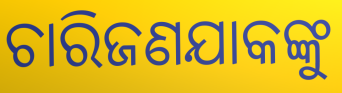
ଚାରିଜଣଯାକଙ୍କୁ